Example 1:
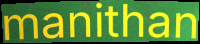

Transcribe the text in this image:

manithan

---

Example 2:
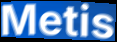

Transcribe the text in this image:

Metis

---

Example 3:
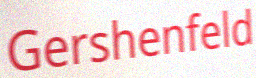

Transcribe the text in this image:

Gershenfeld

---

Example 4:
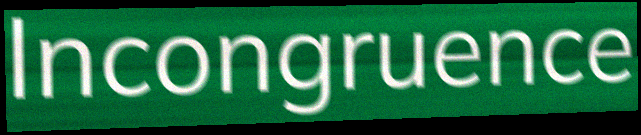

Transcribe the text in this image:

Incongruence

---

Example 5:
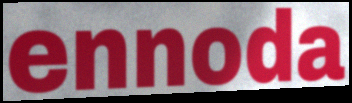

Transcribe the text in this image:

ennoda